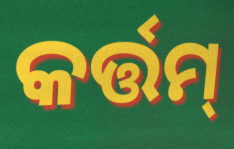
କର୍ତ୍ତମ୍